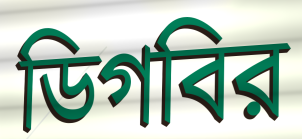
ডিগবির